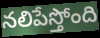
నలిపేస్తోంది